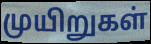
முயிறுகள்